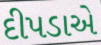
દીપડાએ